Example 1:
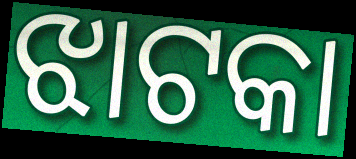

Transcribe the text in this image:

ଝାଟକା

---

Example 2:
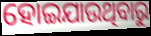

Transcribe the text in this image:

ହୋଇଯାଉଥିବାରୁ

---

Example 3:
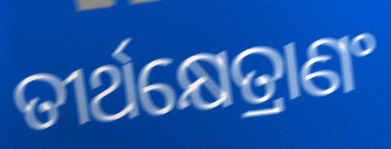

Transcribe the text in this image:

ତୀର୍ଥକ୍ଷେତ୍ରାଣଂ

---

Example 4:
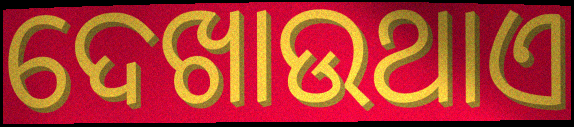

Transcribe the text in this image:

ଦେଖାଉଥାଏ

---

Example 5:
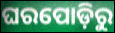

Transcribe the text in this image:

ଘରପୋଡ଼ିରୁ